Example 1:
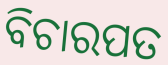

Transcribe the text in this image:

ବିଚାରପତ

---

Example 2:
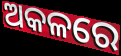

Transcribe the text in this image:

ଅକଳରେ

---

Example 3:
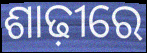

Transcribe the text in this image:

ଶାଢ଼ୀରେ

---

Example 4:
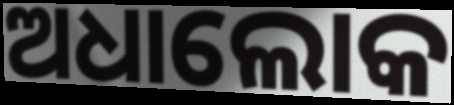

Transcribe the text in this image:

ଅଧାଲୋକ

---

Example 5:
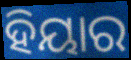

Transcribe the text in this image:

ହିୟାର